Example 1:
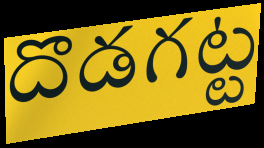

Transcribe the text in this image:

దొడగట్ట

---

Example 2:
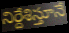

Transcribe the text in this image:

నిర్దేశిస్తూనే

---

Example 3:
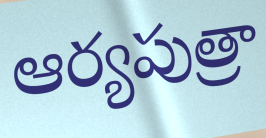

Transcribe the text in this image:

ఆర్యపుత్రా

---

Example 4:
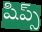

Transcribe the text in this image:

షిప్స్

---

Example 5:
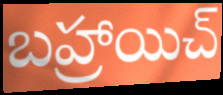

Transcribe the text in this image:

బహ్రాయిచ్